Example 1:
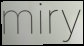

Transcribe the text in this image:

miry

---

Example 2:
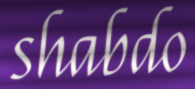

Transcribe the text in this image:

shabdo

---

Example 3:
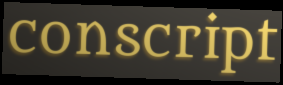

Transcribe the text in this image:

conscript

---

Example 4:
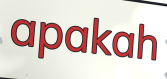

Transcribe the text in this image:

apakah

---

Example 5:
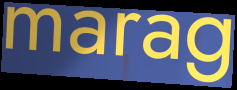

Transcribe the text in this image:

marag